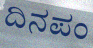
ದಿನಪಂ